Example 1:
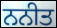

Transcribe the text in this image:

ਨਨੀਤ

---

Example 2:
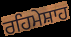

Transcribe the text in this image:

ਰਹਿਮੇਸ਼ਾਹ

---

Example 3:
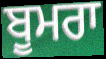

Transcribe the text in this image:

ਬੂਮਰਾ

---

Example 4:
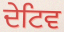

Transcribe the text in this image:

ਦੇਟਿਵ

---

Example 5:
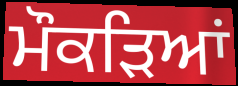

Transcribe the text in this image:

ਮੌਕੜਿਆਂ